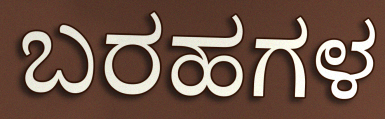
ಬರಹಗಳ